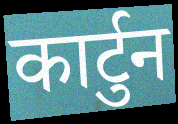
कार्टुन